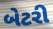
બેટરી